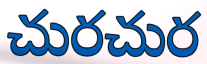
చురచుర